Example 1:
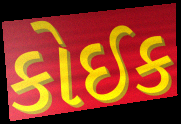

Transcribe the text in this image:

કોઈક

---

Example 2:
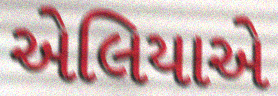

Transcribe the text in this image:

એલિયાએ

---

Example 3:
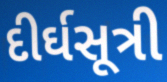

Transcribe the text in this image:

દીર્ઘસૂત્રી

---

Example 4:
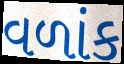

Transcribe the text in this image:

વળાંક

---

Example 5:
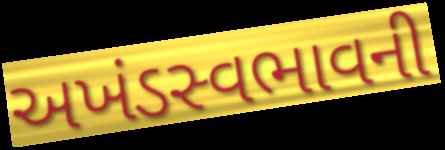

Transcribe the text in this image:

અખંડસ્વભાવની